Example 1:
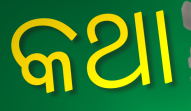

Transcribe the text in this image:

କଥା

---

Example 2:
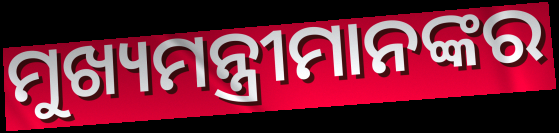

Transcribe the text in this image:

ମୁଖ୍ୟମନ୍ତ୍ରୀମାନଙ୍କର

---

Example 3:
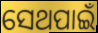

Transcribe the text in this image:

ସେଥପାଇଁ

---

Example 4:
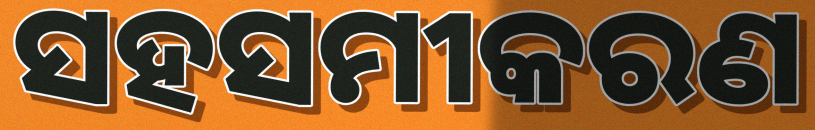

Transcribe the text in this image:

ସହସମୀକରଣ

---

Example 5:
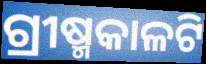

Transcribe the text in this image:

ଗ୍ରୀଷ୍ମକାଳଟି